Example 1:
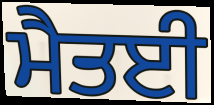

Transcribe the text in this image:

ਮੈਤਈ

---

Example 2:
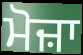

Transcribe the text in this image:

ਮੋਜ਼ਾ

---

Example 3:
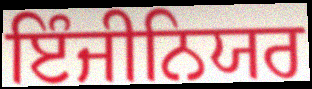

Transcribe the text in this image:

ਇੰਜੀਨਿਯਰ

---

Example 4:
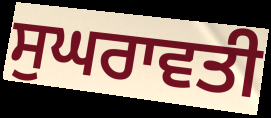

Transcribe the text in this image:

ਸੁਘਰਾਵਤੀ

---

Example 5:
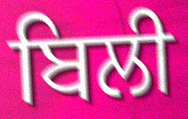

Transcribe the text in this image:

ਬਿਲੀ